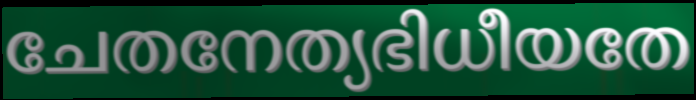
ചേതനേത്യഭിധീയതേ